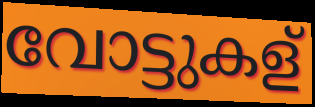
വോട്ടുകള്